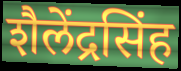
शैलेंद्रसिंह